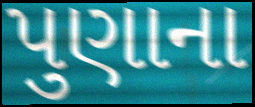
પુણાના